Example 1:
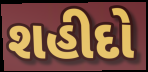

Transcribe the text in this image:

શહીદો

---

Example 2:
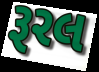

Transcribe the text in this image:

રૂરલ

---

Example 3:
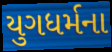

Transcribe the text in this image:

યુગધર્મના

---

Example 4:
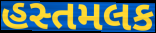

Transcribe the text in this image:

હસ્તમલક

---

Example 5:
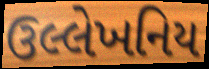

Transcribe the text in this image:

ઉલ્લેખનિય